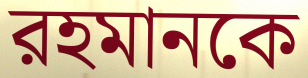
রহমানকে